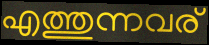
എത്തുന്നവര്